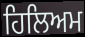
ਹਿਲਿਅਮ